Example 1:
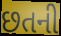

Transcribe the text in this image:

છતની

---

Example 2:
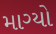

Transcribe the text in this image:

માગ્યો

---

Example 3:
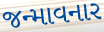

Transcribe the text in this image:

જન્માવનાર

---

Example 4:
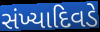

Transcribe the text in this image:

સંખ્યાદિવડે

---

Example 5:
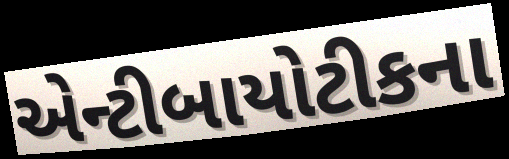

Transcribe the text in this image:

એન્ટીબાયોટીકના